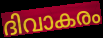
ദിവാകരം